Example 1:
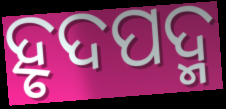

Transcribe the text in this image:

ହୃଦପଦ୍ମ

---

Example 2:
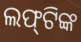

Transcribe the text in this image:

ଲଫ୍‌ଟିଙ୍କ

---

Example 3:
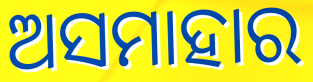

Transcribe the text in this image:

ଅସମାହାର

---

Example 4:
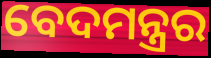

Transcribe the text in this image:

ବେଦମନ୍ତ୍ରର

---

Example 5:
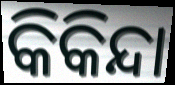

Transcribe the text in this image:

କିକିନ୍ଦା